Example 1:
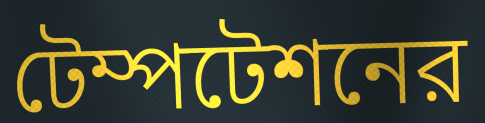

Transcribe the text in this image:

টেম্পটেশনের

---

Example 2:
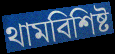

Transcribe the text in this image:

থামবিশিষ্ট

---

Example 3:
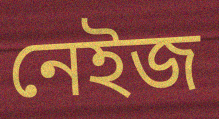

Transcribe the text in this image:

নেইজ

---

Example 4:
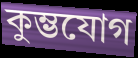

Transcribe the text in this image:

কুম্ভযোগ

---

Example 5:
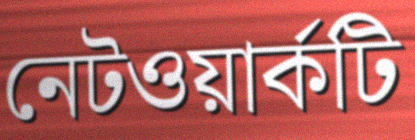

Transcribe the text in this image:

নেটওয়ার্কটি